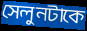
সেলুনটাকে